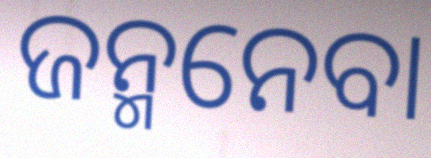
ଜନ୍ମନେବା